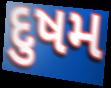
દુષમ